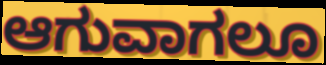
ಆಗುವಾಗಲೂ